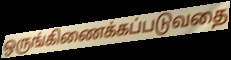
ஒருங்கிணைக்கப்படுவதை